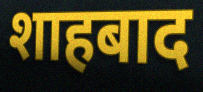
शाहबाद